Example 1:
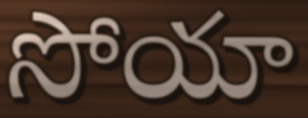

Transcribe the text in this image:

సోయా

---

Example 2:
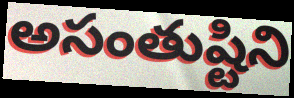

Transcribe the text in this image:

అసంతుష్టిని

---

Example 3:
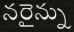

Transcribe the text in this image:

నరైన్ను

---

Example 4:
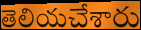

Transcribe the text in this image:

తెలియచేశారు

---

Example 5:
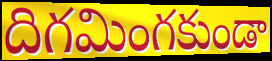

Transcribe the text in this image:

దిగమింగకుండా